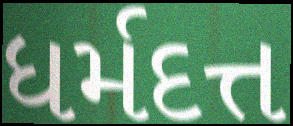
ધર્મદત્ત